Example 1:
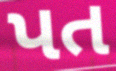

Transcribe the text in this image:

પત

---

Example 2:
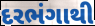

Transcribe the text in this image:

દરભંગાથી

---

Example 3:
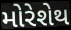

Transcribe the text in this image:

મોરેશેથ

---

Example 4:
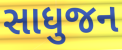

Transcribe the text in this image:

સાધુજન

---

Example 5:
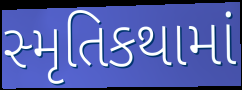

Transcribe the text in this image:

સ્મૃતિકથામાં